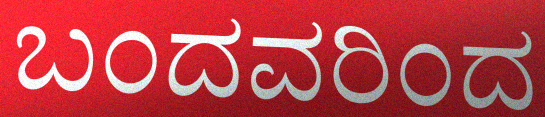
ಬಂದವರಿಂದ